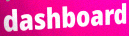
dashboard